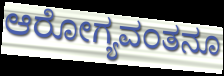
ಆರೋಗ್ಯವಂತನೂ